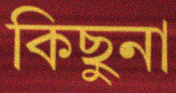
কিছুনা